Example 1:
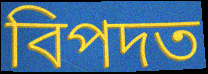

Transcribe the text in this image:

বিপদত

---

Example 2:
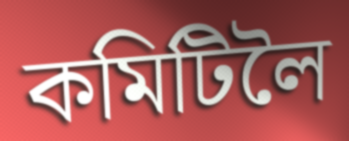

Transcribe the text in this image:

কমিটিলৈ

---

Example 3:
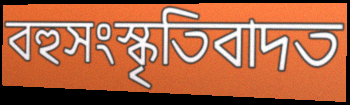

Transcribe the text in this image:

বহুসংস্কৃতিবাদত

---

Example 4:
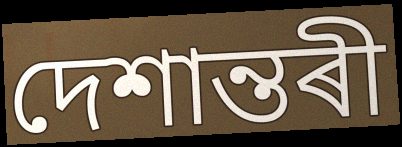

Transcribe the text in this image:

দেশান্তৰী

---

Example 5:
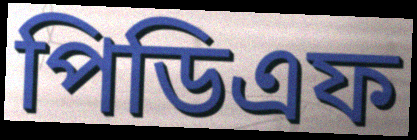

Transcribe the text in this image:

পিডিএফ